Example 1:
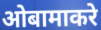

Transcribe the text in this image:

ओबामाकरे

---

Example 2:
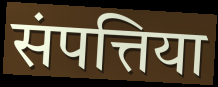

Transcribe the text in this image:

संपत्तिया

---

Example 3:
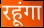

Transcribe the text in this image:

रहूंगा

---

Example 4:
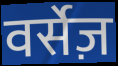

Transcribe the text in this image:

वर्सेज़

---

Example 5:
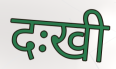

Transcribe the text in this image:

दःखी